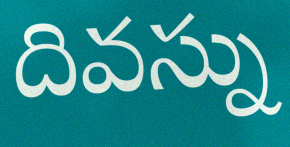
దివస్ను